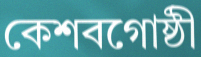
কেশবগোষ্ঠী